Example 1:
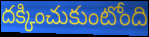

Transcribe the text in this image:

దక్కించుకుంటోంది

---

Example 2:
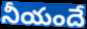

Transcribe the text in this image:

నీయందే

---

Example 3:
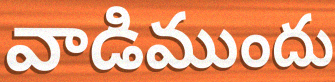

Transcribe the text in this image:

వాడిముందు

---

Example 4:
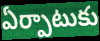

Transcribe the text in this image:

ఏర్పాటుకు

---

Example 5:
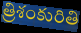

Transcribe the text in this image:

త్రిశంకురితి